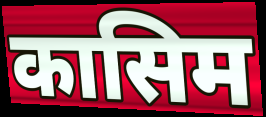
कासिम